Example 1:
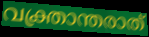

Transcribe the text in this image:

വക്ത്രാന്തരാത്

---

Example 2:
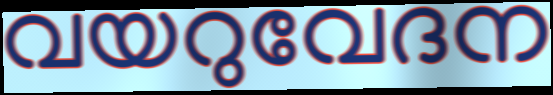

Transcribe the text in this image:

വയറുവേദന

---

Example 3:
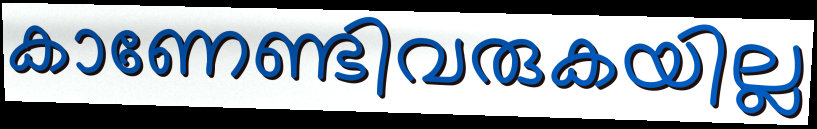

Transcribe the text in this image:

കാണേണ്ടിവരുകയില്ല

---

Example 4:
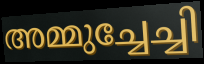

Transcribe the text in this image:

അമ്മുച്ചേച്ചി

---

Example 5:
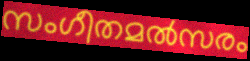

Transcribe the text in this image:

സംഗീതമൽസരം